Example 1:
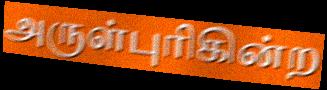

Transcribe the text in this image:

அருள்புரிகின்ற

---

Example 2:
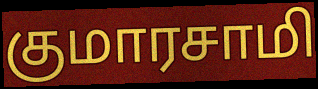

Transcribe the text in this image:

குமாரசாமி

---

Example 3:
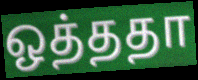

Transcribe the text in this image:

ஒத்ததா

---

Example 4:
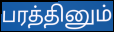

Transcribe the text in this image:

பரத்தினும்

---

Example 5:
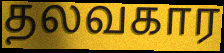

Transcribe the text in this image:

தலவகார